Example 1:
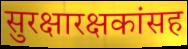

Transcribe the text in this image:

सुरक्षारक्षकांसह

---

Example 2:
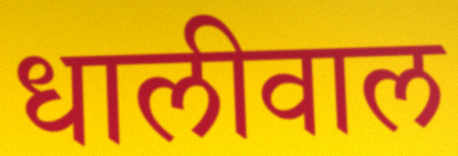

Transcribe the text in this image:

धालीवाल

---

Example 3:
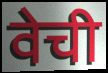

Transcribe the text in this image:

वेची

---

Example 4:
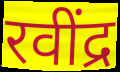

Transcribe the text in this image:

रवींद्र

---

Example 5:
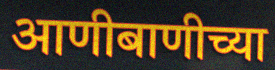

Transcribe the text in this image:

आणीबाणीच्या